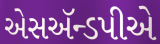
એસઍન્ડપીએ